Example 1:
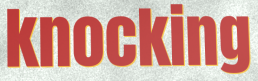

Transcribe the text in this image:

knocking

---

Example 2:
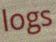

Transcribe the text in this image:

logs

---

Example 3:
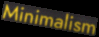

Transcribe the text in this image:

Minimalism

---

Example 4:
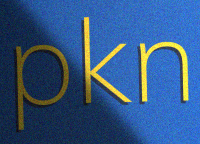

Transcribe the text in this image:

pkn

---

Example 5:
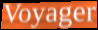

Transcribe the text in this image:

Voyager